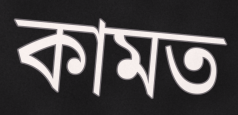
কামত